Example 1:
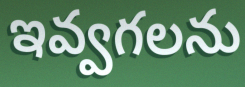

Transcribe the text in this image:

ఇవ్వగలను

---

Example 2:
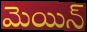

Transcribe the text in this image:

మెయిన్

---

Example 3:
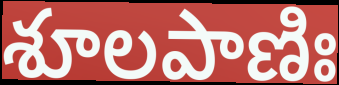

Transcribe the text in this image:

శూలపాణిః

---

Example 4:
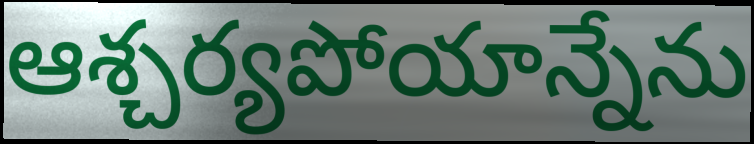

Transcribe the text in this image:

ఆశ్చర్యపోయాన్నేను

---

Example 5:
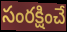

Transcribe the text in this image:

సంరక్షించే